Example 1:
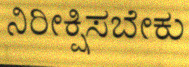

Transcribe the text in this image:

ನಿರೀಕ್ಷಿಸಬೇಕು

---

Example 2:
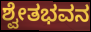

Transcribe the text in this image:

ಶ್ವೇತಭವನ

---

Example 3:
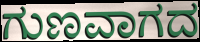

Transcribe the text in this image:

ಗುಣವಾಗದ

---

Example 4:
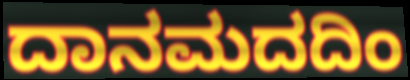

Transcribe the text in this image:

ದಾನಮದದಿಂ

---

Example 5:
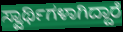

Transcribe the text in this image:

ಸ್ವಾರ್ಥಿಗಳಾಗಿದ್ದಾರೆ